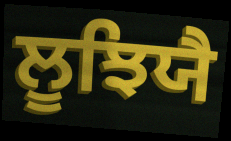
ਲੂਝਿਯੈ